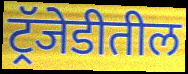
ट्रॅजेडीतील